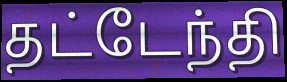
தட்டேந்தி